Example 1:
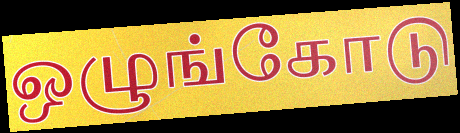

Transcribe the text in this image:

ஒழுங்கோடு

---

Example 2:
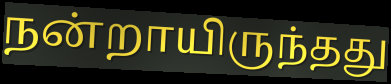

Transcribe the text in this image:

நன்றாயிருந்தது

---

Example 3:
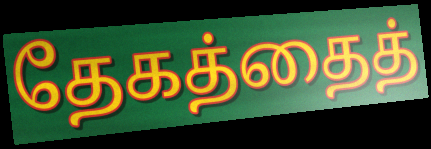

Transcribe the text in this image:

தேகத்தைத்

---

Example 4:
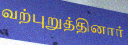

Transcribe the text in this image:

வற்புறுத்தினார்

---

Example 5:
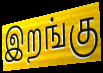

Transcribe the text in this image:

இறங்கு